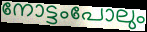
നോട്ടംപോലും